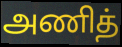
அணித்